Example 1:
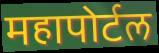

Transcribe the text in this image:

महापोर्टल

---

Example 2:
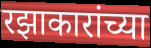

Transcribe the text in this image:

रझाकारांच्या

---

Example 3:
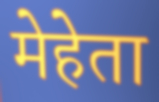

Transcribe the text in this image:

मेहेता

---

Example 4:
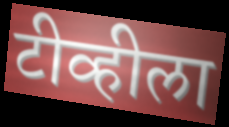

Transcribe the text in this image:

टीव्हीला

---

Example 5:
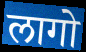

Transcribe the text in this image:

लागो